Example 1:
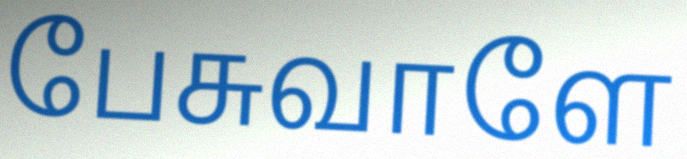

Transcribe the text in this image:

பேசுவாளே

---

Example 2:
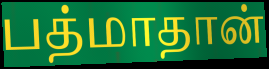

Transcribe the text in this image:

பத்மாதான்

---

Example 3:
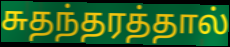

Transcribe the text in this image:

சுதந்தரத்தால்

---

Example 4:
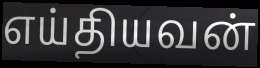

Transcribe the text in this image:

எய்தியவன்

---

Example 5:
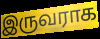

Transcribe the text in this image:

இருவராக